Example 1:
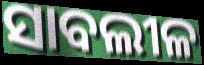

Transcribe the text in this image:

ସାବଲୀଳ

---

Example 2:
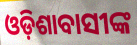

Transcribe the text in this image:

ଓଡ଼ିଶାବାସୀଙ୍କ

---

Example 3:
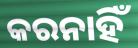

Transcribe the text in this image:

କରନାହିଁ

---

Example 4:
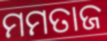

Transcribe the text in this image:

ମମତାଜ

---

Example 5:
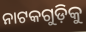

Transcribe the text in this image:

ନାଟକଗୁଡ଼ିକୁ